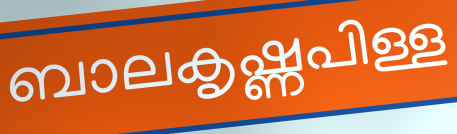
ബാലകൃഷ്ണപിള്ള